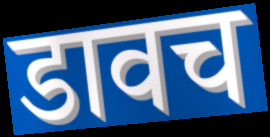
डावच